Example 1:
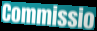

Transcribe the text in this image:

Commissio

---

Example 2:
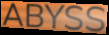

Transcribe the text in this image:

ABYSS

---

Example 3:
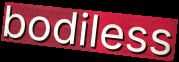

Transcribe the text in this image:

bodiless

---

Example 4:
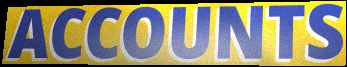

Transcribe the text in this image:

ACCOUNTS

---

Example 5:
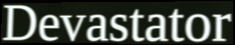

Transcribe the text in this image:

Devastator